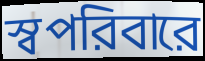
স্বপরিবারে